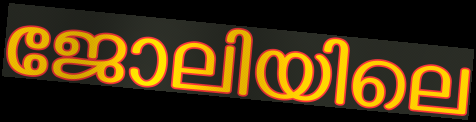
ജോലിയിലെ